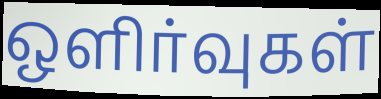
ஒளிர்வுகள்